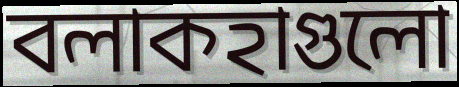
বলাকহাগুলো